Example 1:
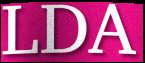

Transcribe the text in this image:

LDA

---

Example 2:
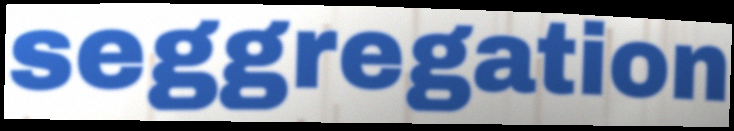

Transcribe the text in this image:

seggregation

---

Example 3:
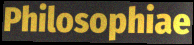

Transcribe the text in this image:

Philosophiae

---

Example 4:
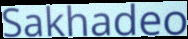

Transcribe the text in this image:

Sakhadeo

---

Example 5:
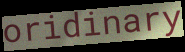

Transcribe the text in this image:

oridinary